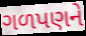
ગળપણને